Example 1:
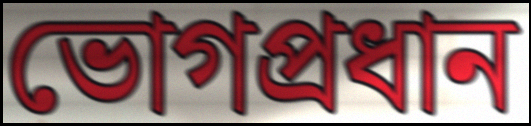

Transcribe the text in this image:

ভোগপ্রধান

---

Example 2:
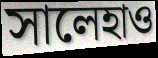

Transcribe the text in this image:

সালেহাও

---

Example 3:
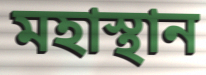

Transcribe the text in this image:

মহাস্থান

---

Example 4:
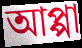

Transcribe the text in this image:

আপ্পা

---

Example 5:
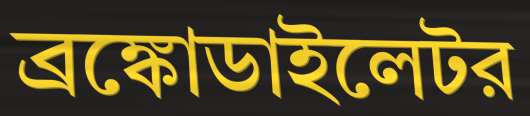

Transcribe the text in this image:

ব্রঙ্কোডাইলেটর